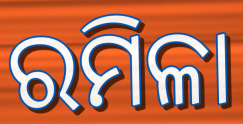
ରମିଳା